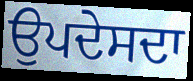
ਉਪਦੇਸਦਾ